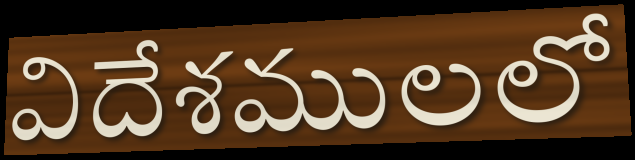
విదేశములలో